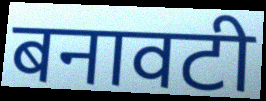
बनावटी